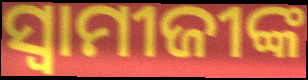
ସ୍ୱାମୀଜୀଙ୍କ